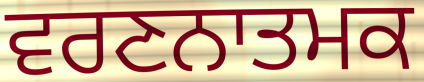
ਵਰਣਨਾਤਮਕ